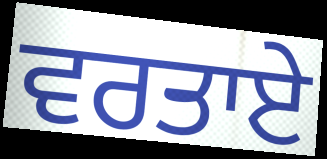
ਵਰਤਾਏ